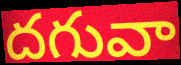
దగువా